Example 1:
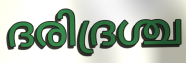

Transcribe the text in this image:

ദരിദ്രശ്ച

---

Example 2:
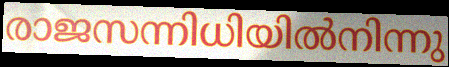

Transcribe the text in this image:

രാജസന്നിധിയിൽനിന്നു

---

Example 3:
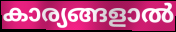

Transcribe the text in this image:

കാര്യങ്ങളാൽ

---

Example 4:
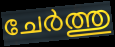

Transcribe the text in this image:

ചേർത്തു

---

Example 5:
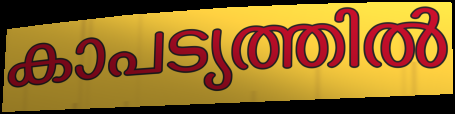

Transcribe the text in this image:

കാപട്യത്തിൽ